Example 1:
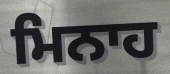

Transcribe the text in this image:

ਮਿਨਾਹ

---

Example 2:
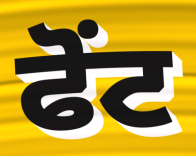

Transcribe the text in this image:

ਫੋਂਟ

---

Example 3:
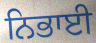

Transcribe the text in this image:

ਨਿਭਾਈ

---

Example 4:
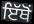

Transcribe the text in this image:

ਇੱਥੋਂ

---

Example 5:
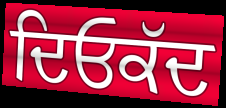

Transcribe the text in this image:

ਦਿਓਕੱਦ